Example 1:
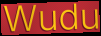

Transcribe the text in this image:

Wudu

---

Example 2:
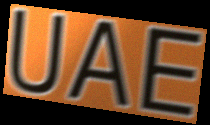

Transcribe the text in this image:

UAE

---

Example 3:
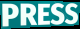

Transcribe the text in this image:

PRESS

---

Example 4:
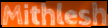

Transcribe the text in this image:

Mithlesh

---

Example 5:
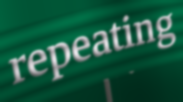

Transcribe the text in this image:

repeating